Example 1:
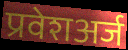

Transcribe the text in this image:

प्रवेशअर्ज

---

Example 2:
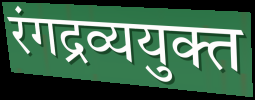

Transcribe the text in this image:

रंगद्रव्ययुक्त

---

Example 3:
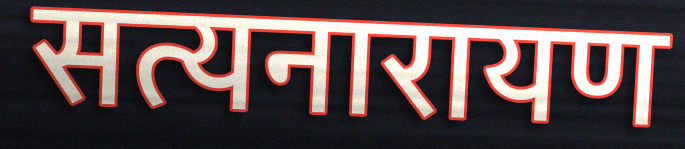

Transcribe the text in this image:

सत्यनारायण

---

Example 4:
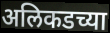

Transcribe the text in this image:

अलिकडच्या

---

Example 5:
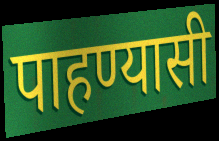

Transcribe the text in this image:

पाहण्यासी